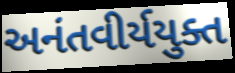
અનંતવીર્યયુક્ત